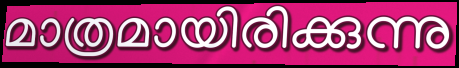
മാത്രമായിരിക്കുന്നു